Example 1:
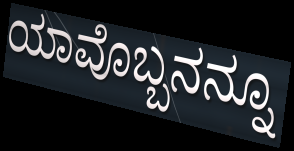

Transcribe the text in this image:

ಯಾವೊಬ್ಬನನ್ನೂ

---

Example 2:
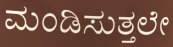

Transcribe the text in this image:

ಮಂಡಿಸುತ್ತಲೇ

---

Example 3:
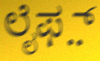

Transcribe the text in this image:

ಲೈಫ಼್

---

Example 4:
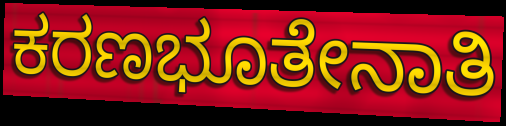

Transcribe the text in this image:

ಕರಣಭೂತೇನಾತಿ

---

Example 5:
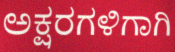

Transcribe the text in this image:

ಅಕ್ಷರಗಳಿಗಾಗಿ